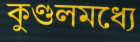
কুণ্ডলমধ্যে